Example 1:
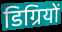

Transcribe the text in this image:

डिग्रियों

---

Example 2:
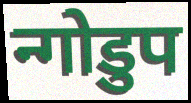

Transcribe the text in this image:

न्गोडुप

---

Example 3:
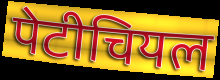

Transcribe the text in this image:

पेटीचियल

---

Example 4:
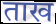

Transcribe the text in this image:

ताख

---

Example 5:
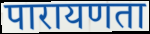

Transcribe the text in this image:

पारायणता